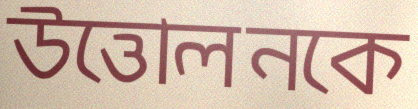
উত্তোলনকে